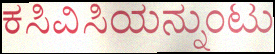
ಕಸಿವಿಸಿಯನ್ನುಂಟು